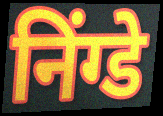
निंग्डे